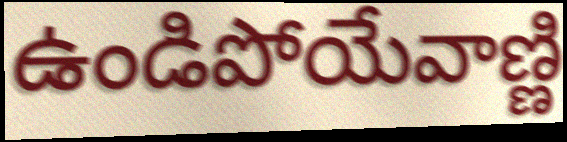
ఉండిపోయేవాణ్ణి